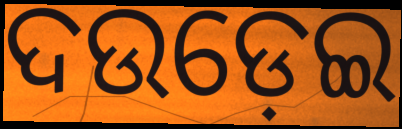
ଦଉଡ଼େଇ